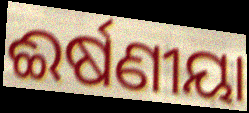
ଈର୍ଷଣୀୟା